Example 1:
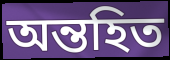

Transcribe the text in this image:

অন্তহিত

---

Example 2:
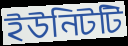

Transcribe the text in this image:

ইউনিটটি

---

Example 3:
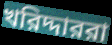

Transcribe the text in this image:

খরিদ্দাররা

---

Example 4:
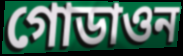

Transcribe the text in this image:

গোডাওন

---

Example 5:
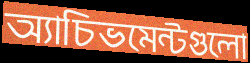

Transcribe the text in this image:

অ্যাচিভমেন্টগুলো